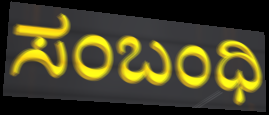
ಸಂಬಂಧಿ